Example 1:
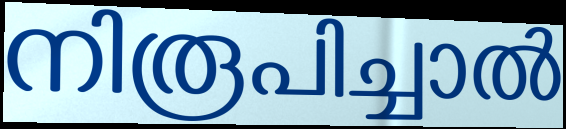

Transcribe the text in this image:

നിരൂപിച്ചാൽ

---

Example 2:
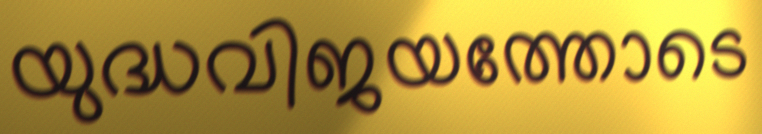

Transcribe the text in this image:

യുദ്ധവിജയത്തോടെ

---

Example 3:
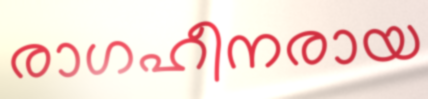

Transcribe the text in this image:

രാഗഹീനരായ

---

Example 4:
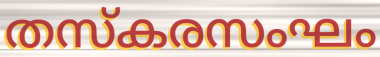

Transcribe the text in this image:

തസ്കരസംഘം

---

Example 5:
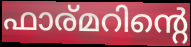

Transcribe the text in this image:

ഫാര്മറിന്റെ